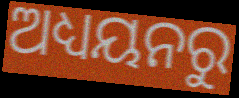
ଅଧ୍ୟୟନରୁ